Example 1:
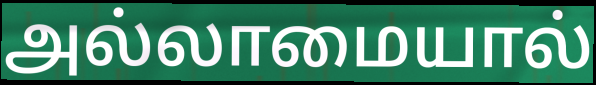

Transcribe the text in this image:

அல்லாமையால்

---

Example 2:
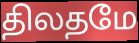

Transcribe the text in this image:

திலதமே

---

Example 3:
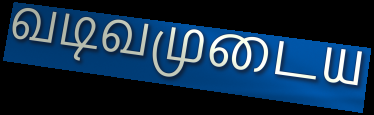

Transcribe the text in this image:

வடிவமுடைய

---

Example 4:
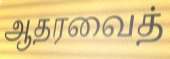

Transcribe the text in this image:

ஆதரவைத்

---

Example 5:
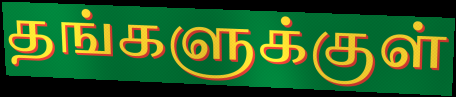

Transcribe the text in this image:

தங்களுக்குள்